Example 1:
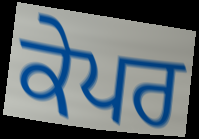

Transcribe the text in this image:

ਕੇਪਰ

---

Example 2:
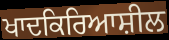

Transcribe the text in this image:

ਖਾਦਕਿਰਿਆਸ਼ੀਲ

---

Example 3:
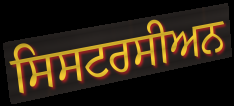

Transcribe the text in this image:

ਸਿਸਟਰਸੀਅਨ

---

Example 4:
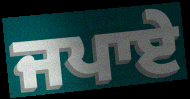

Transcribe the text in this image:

ਜਪਾਏ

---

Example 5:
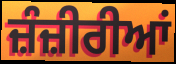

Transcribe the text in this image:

ਜ਼ੰਜ਼ੀਰੀਆਂ